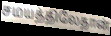
சமயத்திலேதான்